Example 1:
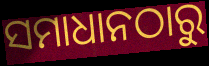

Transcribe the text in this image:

ସମାଧାନଠାରୁ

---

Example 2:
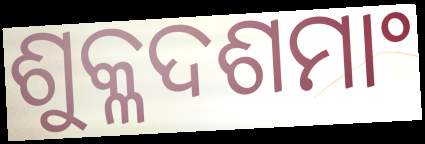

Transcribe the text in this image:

ଶୁକ୍ଳଦଶମାଂ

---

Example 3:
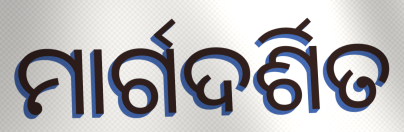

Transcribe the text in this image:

ମାର୍ଗଦର୍ଶିତ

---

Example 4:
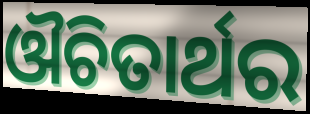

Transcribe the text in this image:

ଔଚିତାର୍ଥର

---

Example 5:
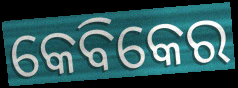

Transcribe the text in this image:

କେବିକେର